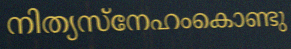
നിത്യസ്നേഹംകൊണ്ടു